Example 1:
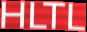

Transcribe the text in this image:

HLTL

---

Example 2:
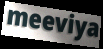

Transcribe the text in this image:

meeviya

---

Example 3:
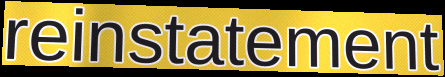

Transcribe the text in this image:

reinstatement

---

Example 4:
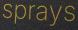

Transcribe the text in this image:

sprays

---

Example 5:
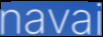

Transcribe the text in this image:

navai